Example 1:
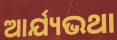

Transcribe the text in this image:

ଆର୍ଯ୍ୟଭଥା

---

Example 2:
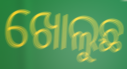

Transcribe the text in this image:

ଖୋଲୁଛ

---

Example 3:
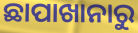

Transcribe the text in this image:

ଛାପାଖାନାରୁ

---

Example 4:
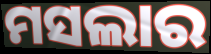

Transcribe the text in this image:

ମସଲାର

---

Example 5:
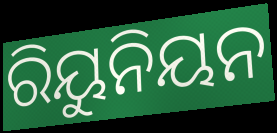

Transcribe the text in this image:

ରିୟୁନିୟନ